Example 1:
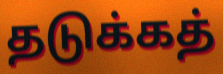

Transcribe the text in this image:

தடுக்கத்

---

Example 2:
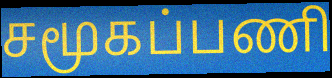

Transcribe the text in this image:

சமூகப்பணி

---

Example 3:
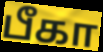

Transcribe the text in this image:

பீகா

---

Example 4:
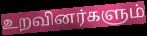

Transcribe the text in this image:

உறவினர்களும்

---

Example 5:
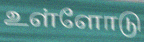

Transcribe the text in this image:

உள்ளோடு